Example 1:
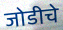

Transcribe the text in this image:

जोडीचे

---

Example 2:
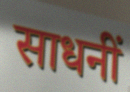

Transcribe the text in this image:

साधनीं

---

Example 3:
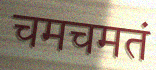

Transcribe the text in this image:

चमचमतं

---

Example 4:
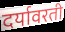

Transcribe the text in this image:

दर्यावरती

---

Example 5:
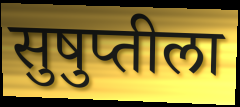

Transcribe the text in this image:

सुषुप्तीला